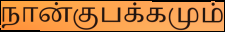
நான்குபக்கமும்